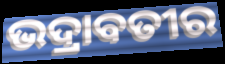
ଭଦ୍ରାବତୀର